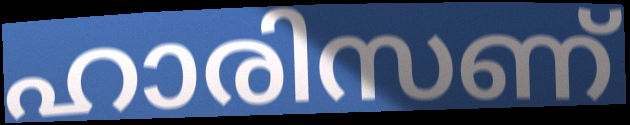
ഹാരിസണ്